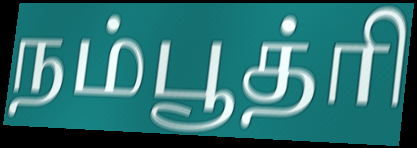
நம்பூத்ரி